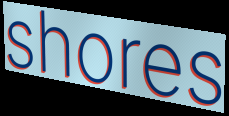
shores